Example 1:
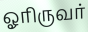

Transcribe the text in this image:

ஓரிருவர்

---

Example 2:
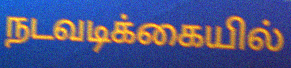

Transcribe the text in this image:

நடவடிக்கையில்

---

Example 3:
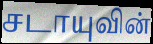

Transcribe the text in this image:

சடாயுவின்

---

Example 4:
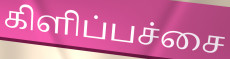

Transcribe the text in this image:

கிளிப்பச்சை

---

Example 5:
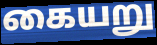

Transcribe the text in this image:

கையறு